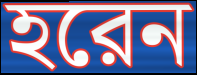
হরেন